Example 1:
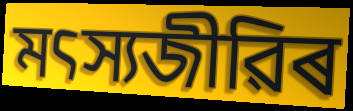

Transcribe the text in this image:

মৎস্যজীৱিৰ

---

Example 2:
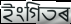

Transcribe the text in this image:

ইংগিতৰ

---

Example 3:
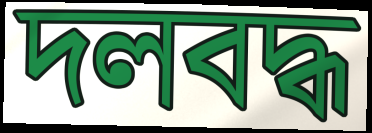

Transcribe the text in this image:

দলবদ্ধ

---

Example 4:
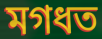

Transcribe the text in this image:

মগধত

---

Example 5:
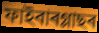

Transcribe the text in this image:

ফাইবাৰগ্লাছৰ